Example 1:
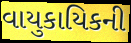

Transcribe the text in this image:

વાયુકાયિકની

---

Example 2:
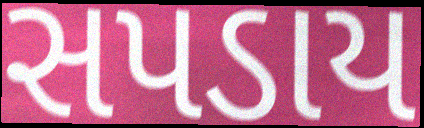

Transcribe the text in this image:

સપડાય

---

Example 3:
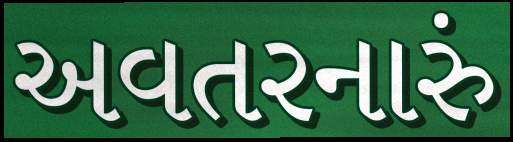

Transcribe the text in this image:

અવતરનારું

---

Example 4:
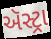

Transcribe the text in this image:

ઍસ્ટ્રા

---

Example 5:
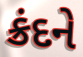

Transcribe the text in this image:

ક્રંદને